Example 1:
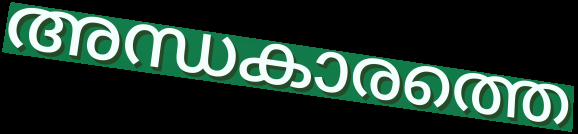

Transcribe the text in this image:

അന്ധകാരത്തെ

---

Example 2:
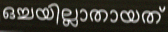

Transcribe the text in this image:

ഒച്ചയില്ലാതായത്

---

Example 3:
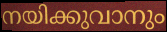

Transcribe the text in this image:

നയിക്കുവാനും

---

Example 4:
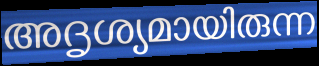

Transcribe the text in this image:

അദൃശ്യമായിരുന്ന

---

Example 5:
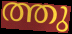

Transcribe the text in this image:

ത്തു